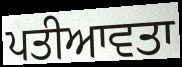
ਪਤੀਆਵਤਾ